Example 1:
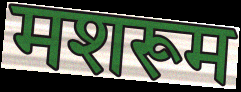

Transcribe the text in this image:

मशरूम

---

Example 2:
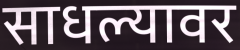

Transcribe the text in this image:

साधल्यावर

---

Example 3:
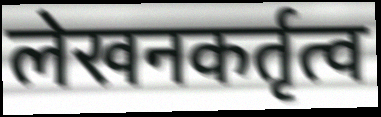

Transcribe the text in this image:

लेखनकर्तृत्व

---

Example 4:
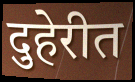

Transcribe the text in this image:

दुहेरीत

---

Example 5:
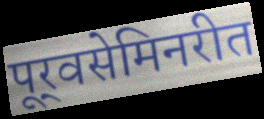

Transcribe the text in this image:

पूर्वसेमिनरीत